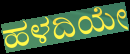
ಹಳದಿಯೇ